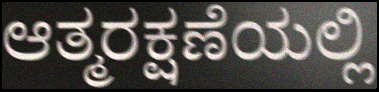
ಆತ್ಮರಕ್ಷಣೆಯಲ್ಲಿ